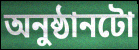
অনুষ্ঠানটো